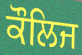
ਕੌਲਿਜ